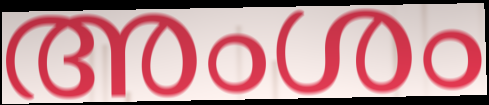
അംശം